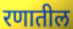
रणातील